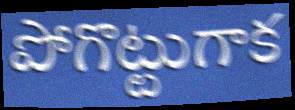
పోగొట్టుగాక